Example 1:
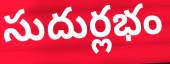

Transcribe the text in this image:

సుదుర్లభం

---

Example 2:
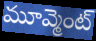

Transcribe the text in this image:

మూవ్మెంట్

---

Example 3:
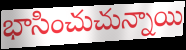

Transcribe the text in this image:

భాసించుచున్నాయి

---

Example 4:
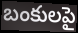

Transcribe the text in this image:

బంకులపై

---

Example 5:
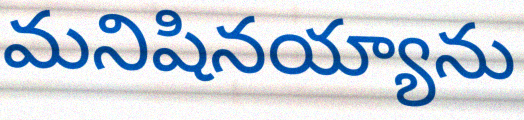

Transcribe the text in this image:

మనిషినయ్యాను